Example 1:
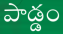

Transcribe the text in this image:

పాడ్డం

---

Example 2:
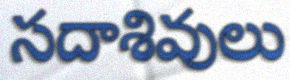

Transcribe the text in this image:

సదాశివులు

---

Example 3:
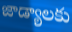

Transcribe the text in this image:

జాడ్యాలకు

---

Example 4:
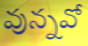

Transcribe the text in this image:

వున్నవో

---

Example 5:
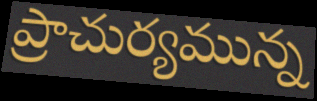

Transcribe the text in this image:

ప్రాచుర్యమున్న